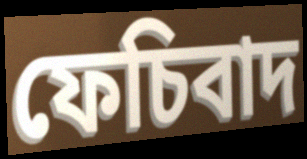
ফেচিবাদ